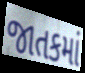
જાતકમાં